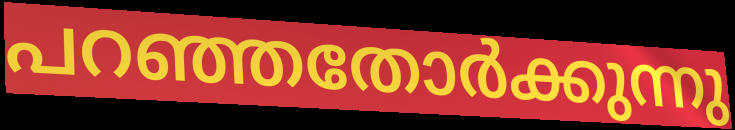
പറഞ്ഞതോർക്കുന്നു